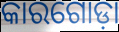
କାରଗୋଡ଼ା